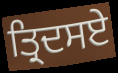
ਤ੍ਰਿਦਸਏ